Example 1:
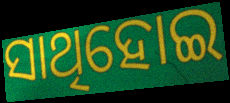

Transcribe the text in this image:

ସାଥିହୋଇ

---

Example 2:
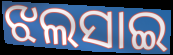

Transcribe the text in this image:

ଝଲସାଇ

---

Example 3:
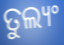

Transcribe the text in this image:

ତୁଲ୍ୟଂ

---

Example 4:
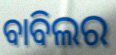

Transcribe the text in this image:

ବାବିଲର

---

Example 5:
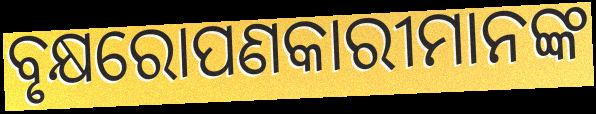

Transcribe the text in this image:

ବୃକ୍ଷରୋପଣକାରୀମାନଙ୍କ